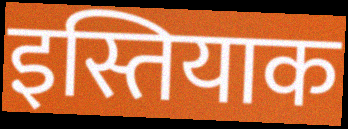
इस्तियाक